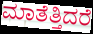
ಮಾತೆತ್ತಿದರೆ